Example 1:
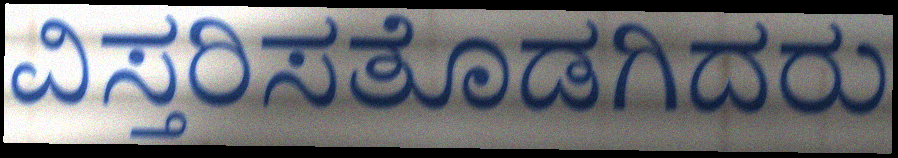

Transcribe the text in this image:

ವಿಸ್ತರಿಸತೊಡಗಿದರು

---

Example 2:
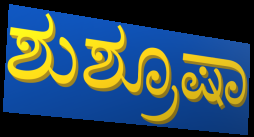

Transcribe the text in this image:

ಶುಶ್ರೂಷಾ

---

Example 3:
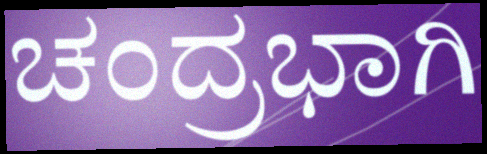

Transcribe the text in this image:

ಚಂದ್ರಭಾಗಿ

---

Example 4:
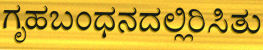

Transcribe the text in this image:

ಗೃಹಬಂಧನದಲ್ಲಿರಿಸಿತು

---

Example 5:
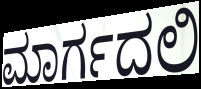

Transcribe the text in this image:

ಮಾರ್ಗದಲಿ